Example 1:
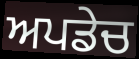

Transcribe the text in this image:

ਅਪਡੇਚ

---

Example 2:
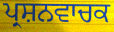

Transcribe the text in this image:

ਪ੍ਰਸ਼ਨਵਾਚਕ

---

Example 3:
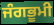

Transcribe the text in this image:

ਜੰਗਭੂਮੀ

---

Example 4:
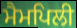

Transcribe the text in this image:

ਮੈਮਪਿਲੀ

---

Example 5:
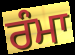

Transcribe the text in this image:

ਰੰਮਾ